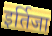
इर्तिजा